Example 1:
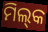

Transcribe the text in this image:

ମିଲ୍‌କ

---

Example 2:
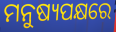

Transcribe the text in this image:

ମନୁଷ୍ୟପକ୍ଷରେ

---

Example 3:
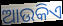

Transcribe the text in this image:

ଆଉକିଏ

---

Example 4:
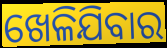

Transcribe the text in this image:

ଖେଳିଯିବାର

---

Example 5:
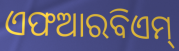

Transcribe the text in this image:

ଏଫଆରବିଏମ୍